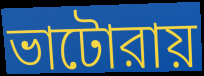
ভাটোরায়